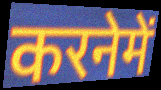
करनेमें